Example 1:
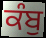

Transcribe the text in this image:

ਕੰਬੁ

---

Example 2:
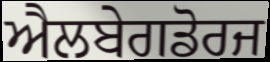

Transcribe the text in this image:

ਐਲਬੇਗਡੋਰਜ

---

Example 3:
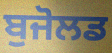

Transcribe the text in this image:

ਬੁਜੋਲਡ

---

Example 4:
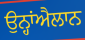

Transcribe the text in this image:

ਉਨ੍ਹਾਂਐਲਾਨ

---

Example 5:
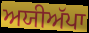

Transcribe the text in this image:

ਅਯੀਅੱਪਾ